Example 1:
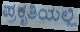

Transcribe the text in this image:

ಪ್ರಕೃತಿಯಲ್ಲಿ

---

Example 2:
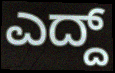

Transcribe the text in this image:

ಎದ್ದ್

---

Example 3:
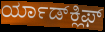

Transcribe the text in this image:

ರ್ಯಾಡ್‍ಕ್ಲಿಫ್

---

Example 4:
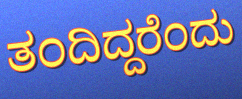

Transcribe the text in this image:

ತಂದಿದ್ದರೆಂದು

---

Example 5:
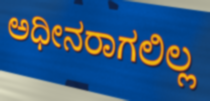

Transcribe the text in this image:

ಅಧೀನರಾಗಲಿಲ್ಲ